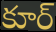
కూర్